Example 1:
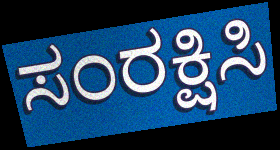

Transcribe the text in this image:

ಸಂರಕ್ಷಿಸಿ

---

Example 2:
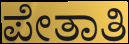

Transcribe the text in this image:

ಪೇತಾತಿ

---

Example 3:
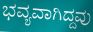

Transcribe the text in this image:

ಭವ್ಯವಾಗಿದ್ದವು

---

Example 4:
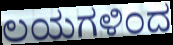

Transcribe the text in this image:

ಲಯಗಳಿಂದ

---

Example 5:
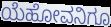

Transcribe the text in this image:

ಯೆಹೋವನಿಗೂ